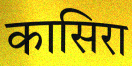
कासिरा